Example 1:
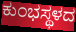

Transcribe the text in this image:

ಕುಂಭಸ್ಥಳದ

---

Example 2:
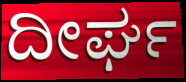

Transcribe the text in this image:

ದೀರ್ಘ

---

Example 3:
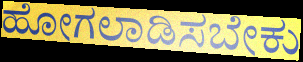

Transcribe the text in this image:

ಹೋಗಲಾಡಿಸಬೇಕು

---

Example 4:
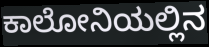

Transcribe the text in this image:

ಕಾಲೋನಿಯಲ್ಲಿನ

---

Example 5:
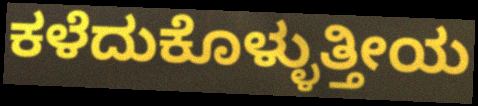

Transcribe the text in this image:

ಕಳೆದುಕೊಳ್ಳುತ್ತೀಯ